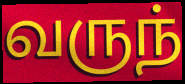
வருந்